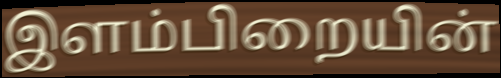
இளம்பிறையின்